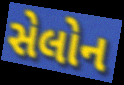
સેલોન